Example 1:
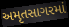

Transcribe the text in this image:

અમૃતસાગરમાં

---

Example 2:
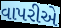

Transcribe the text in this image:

વાપરીએ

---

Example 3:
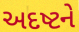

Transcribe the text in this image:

અદષ્ટને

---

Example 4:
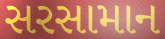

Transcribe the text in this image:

સરસામાન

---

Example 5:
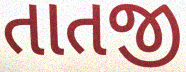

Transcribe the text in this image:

તાતજી